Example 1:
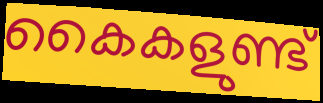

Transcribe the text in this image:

കൈകളുണ്ട്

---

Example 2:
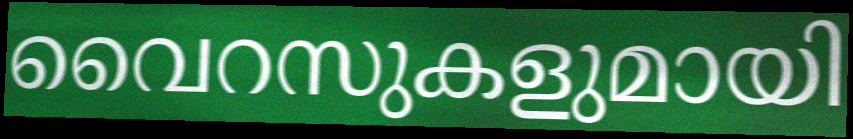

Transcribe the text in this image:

വൈറസുകളുമായി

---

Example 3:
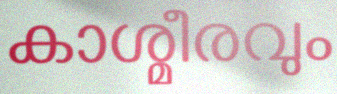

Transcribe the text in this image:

കാശ്മീരവും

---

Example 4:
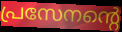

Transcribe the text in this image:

പ്രസേനന്റെ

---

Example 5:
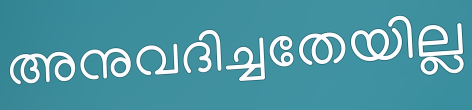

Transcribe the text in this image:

അനുവദിച്ചതേയില്ല